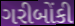
ગરીબોંકી